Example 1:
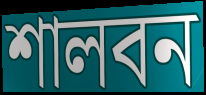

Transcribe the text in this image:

শালবন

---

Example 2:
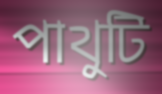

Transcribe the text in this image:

পাথুটি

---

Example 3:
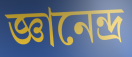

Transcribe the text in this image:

জ্ঞানেন্দ্র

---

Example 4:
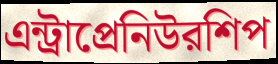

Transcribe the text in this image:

এন্ট্রাপ্রেনিউরশিপ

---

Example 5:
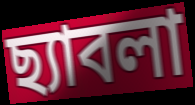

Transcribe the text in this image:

ছ্যাবলা